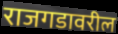
राजगडावरील